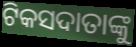
ଟିକସଦାତାଙ୍କୁ